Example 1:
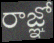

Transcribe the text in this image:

రాజ్ఞో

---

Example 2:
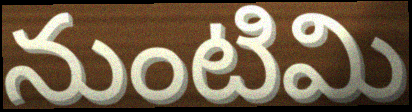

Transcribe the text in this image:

నుంటిమి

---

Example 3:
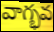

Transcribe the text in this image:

వాగ్భవ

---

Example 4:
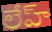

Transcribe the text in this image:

లేహ్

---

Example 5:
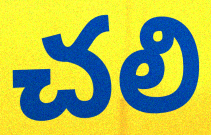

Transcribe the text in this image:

చలి